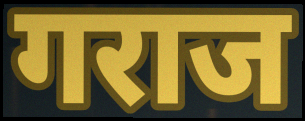
गराज